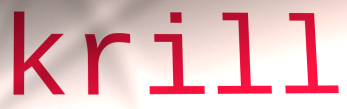
krill